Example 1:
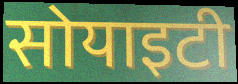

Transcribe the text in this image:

सोयाइटी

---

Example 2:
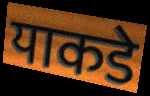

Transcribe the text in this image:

याकडे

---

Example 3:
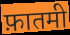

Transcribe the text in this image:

फ़ातमी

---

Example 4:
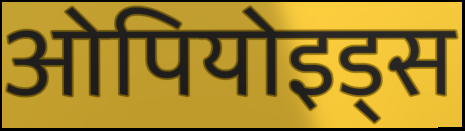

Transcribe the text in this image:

ओपियोइड्स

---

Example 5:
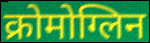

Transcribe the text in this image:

क्रोमोग्लिन